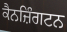
ਕੈਨਜ਼ਿੰਗਟਨ